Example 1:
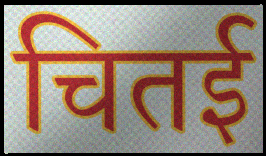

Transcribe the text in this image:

चितई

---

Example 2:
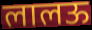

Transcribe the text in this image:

लालऊ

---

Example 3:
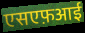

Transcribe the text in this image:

एसएफ़आई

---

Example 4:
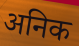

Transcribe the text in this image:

अनिक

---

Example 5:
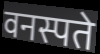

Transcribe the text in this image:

वनस्पते